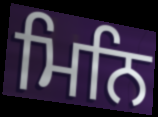
ਮਿਨਿ